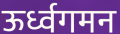
ऊर्ध्वगमन